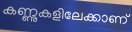
കണ്ണുകളിലേക്കാണ്